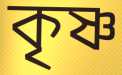
কৃষ্ণ